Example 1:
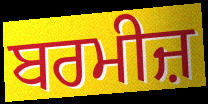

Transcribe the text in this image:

ਬਰਮੀਜ਼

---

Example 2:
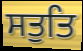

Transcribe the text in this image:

ਸਤੁਤਿ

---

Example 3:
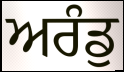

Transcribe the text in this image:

ਅਰੰਡੁ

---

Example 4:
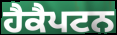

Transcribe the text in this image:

ਹੈਕੈਪਟਨ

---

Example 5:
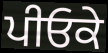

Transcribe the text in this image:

ਪੀਓਕੇ